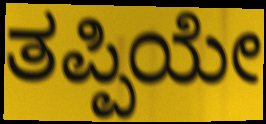
ತಪ್ಪಿಯೇ